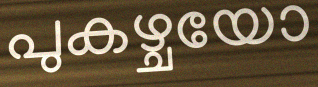
പുകഴ്ചയോ